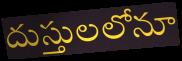
దుస్తులలోనూ